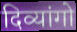
दिव्यांगो